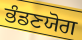
ਭੰਡਣਯੋਗ